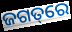
ଜଗତ୍‌ରେ